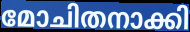
മോചിതനാക്കി